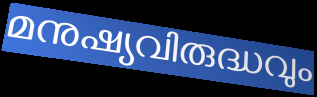
മനുഷ്യവിരുദ്ധവും